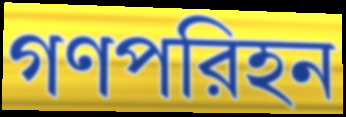
গণপরিহন